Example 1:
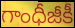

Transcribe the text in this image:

గాంధీజీకీ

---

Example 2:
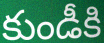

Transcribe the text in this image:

కుండీకి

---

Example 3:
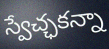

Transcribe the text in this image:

స్వేచ్ఛకన్నా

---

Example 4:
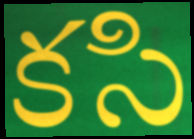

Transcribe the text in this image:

కసి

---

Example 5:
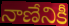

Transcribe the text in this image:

నాణేనికీ